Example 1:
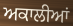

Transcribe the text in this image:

ਅਕਾਲੀਆਂ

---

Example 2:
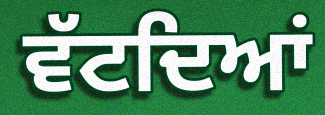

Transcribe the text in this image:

ਵੱਟਦਿਆਂ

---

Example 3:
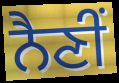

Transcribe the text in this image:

ਨੈਣੀਂ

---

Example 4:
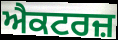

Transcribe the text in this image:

ਐਕਟਰਜ਼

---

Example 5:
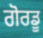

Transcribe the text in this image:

ਗੋਰਡੂ